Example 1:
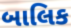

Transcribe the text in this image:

બાલિક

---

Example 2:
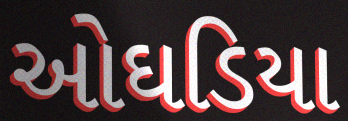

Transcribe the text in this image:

ઓઘડિયા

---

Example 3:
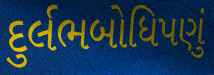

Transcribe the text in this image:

દુર્લભબોધિપણું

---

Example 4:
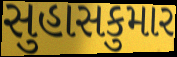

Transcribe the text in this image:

સુહાસકુમાર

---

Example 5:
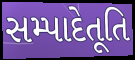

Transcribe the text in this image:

સમ્પાદેતૂતિ